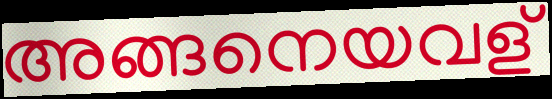
അങ്ങനെയവള്